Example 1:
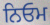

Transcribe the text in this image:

ਨਿਓਮ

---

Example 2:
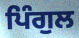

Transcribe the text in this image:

ਪਿੰਗੁਲ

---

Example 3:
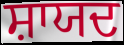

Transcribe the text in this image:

ਸ਼ਾਯਦ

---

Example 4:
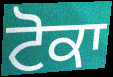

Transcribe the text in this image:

ਟੋਕਾ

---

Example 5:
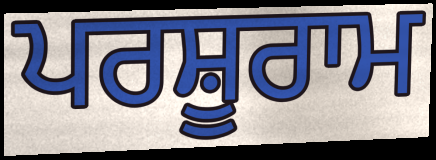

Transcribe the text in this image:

ਪਰਸ਼ੂਰਾਮ